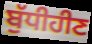
ਬੁੱਧੀਹੀਣ